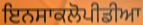
ਇਨਸਾਕਲੋਪੀਡੀਆ